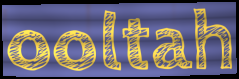
ooltah